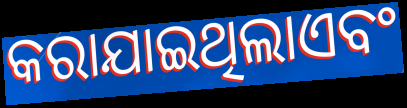
କରାଯାଇଥିଲାଏବଂ